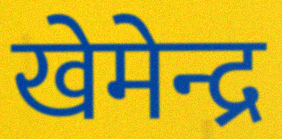
खेमेन्द्र